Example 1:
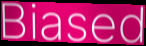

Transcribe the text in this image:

Biased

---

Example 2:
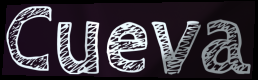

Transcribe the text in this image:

Cueva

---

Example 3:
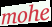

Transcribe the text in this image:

mohe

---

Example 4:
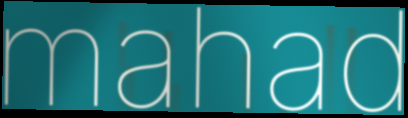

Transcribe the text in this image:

mahad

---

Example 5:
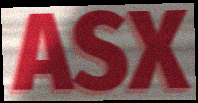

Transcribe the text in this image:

ASX